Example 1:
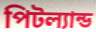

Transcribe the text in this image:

পিটল্যান্ড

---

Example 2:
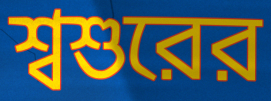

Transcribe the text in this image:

শ্বশুরের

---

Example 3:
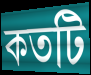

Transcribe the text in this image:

কতটি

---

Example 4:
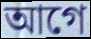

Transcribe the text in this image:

আগে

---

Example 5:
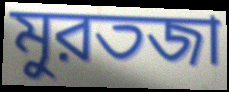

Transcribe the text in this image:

মুরতজা